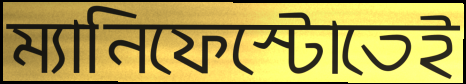
ম্যানিফেস্টোতেই